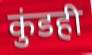
कुंडही